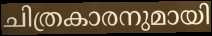
ചിത്രകാരനുമായി